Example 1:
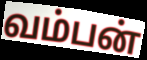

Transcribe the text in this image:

வம்பன்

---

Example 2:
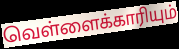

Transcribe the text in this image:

வெள்ளைக்காரியும்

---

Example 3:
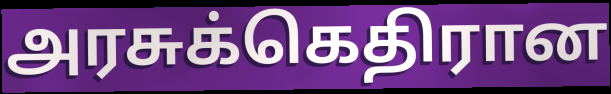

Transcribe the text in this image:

அரசுக்கெதிரான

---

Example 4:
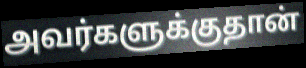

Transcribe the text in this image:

அவர்களுக்குதான்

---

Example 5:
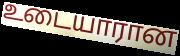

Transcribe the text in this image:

உடையாரான